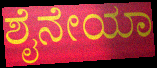
ಶೈನೇಯಾ